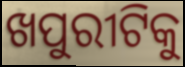
ଖପୁରୀଟିକୁ